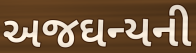
અજઘન્યની